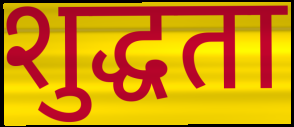
शुद्धता